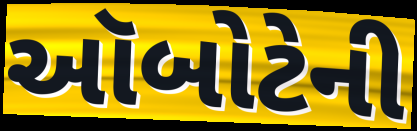
ઑબોટેની